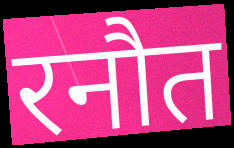
रनौत